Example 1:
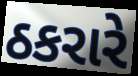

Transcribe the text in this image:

ઠકરારે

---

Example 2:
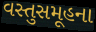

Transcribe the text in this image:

વસ્તુસમૂહના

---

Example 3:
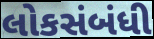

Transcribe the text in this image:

લોકસંબંધી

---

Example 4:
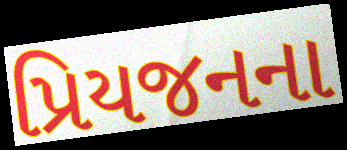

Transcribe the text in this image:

પ્રિયજનના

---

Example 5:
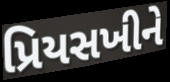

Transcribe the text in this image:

પ્રિયસખીને